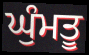
ਘੁੰਮਤੂ